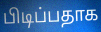
பிடிப்பதாக